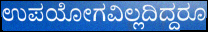
ಉಪಯೋಗವಿಲ್ಲದಿದ್ದರೂ